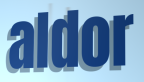
aldor